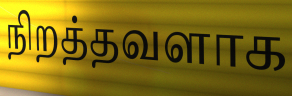
நிறத்தவளாக